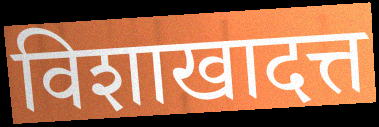
विशाखादत्त